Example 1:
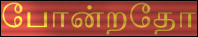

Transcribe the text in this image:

போன்றதோ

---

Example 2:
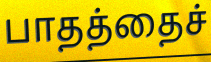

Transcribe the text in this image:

பாதத்தைச்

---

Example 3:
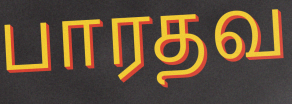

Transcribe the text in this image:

பாரதவ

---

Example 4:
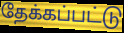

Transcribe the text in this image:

தேக்கப்பட்டு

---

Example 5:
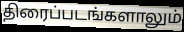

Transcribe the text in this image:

திரைப்படங்களாலும்